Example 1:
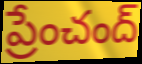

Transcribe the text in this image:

ప్రేంచంద్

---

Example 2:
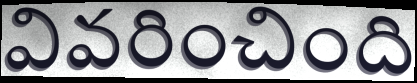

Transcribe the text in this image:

వివరించింది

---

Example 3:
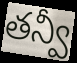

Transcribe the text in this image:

తన్వీ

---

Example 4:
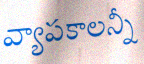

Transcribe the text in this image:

వ్యాపకాలన్నీ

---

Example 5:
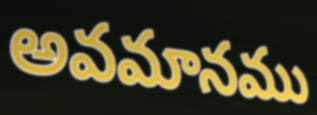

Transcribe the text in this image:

అవమానము